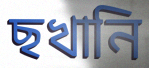
ছখানি